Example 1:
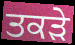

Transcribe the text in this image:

ਤਕੜੇ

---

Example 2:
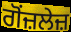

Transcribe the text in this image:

ਗੋਂਜ਼ਲੇਜ਼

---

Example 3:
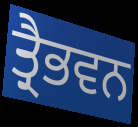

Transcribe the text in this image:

ਤ੍ਰੈਭਵਨ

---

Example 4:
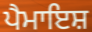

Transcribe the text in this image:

ਪੈਮਾਇਸ਼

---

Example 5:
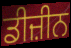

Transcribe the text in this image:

ਡੀਜ਼ੀਨ